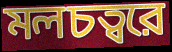
মলচত্বরে